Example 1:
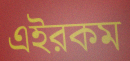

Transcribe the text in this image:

এইরকম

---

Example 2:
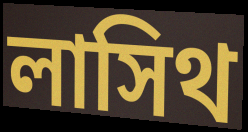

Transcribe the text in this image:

লাসিথ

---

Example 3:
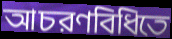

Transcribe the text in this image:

আচরণবিধিতে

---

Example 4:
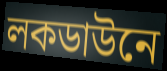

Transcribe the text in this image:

লকডাউনে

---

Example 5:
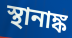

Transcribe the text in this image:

স্থানাঙ্ক